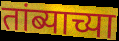
तांब्याच्या